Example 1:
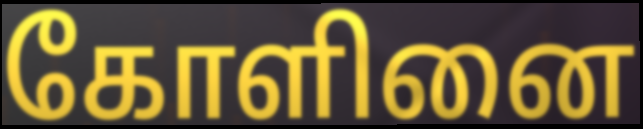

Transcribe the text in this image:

கோளினை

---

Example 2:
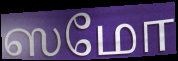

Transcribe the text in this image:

ஸமோ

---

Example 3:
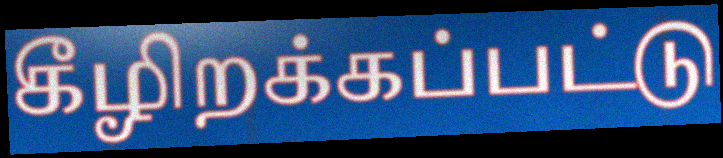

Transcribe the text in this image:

கீழிறக்கப்பட்டு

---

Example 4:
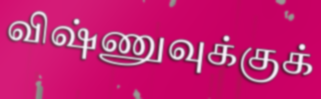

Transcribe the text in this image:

விஷ்ணுவுக்குக்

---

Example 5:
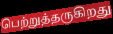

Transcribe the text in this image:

பெற்றுத்தருகிறது